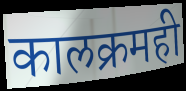
कालक्रमही